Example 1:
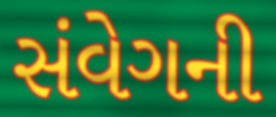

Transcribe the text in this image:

સંવેગની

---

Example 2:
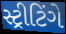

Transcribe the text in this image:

સ્ટ્રીટિંગે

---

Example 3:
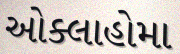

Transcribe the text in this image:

ઓક્લાહોમા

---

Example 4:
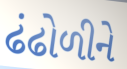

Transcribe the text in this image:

ઢંઢોળીને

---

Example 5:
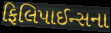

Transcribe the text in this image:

ફિલિપાઈન્સના